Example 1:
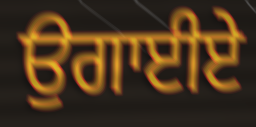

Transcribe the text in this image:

ਉਗਾਈਏ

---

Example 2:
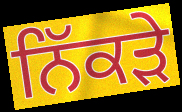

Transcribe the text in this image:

ਨਿੱਕੜੇ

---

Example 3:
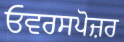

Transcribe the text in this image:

ਓਵਰਸਪੋਜ਼ਰ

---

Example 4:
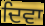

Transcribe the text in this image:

ਦਿਵਾ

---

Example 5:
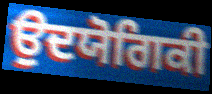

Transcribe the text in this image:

ਉਦਯੋਗਿਕੀ